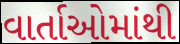
વાર્તાઓમાંથી